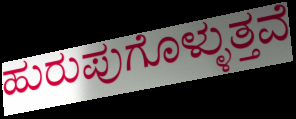
ಹುರುಪುಗೊಳ್ಳುತ್ತವೆ